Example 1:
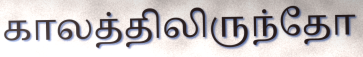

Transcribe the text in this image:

காலத்திலிருந்தோ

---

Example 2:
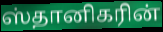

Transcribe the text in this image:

ஸ்தானிகரின்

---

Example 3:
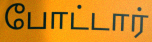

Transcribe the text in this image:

போட்டார்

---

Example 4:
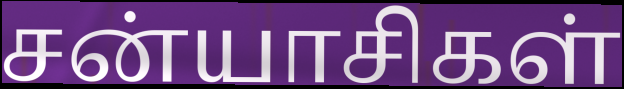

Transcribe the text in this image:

சன்யாசிகள்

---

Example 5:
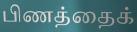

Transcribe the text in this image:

பிணத்தைக்